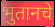
भुतानचे